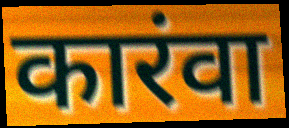
कारंवा